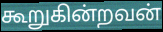
கூறுகின்றவன்